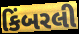
કિંબરલી